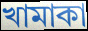
খামাকা